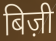
बिज़ी